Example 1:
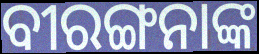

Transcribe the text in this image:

ବୀରଙ୍ଗନାଙ୍କ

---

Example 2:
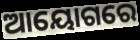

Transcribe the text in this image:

ଆୟୋଗରେ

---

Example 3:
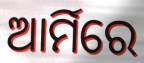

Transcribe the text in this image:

ଆର୍ମିରେ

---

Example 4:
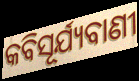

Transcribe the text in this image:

କବିସୂର୍ଯ୍ୟବାଣୀ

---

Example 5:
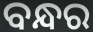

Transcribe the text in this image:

ବନ୍ଧର